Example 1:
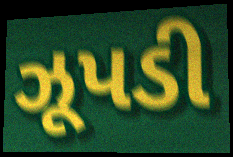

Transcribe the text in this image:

ઝૂપડી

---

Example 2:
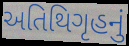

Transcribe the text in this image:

અતિથિગૃહનું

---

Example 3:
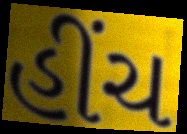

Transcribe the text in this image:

હીંચ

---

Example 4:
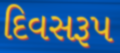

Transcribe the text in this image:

દિવસરૂપ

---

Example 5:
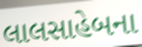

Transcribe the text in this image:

લાલસાહેબના